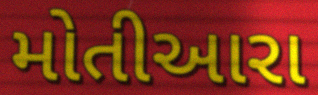
મોતીઆરા